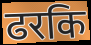
ढरकि